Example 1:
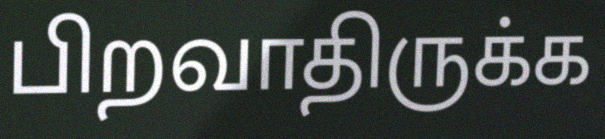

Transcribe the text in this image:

பிறவாதிருக்க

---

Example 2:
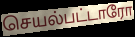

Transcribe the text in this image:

செயல்பட்டாரோ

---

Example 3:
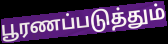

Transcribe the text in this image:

பூரணப்படுத்தும்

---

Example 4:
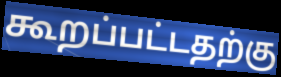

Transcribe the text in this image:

கூறப்பட்டதற்கு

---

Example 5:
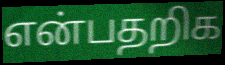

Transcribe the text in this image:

என்பதறிக